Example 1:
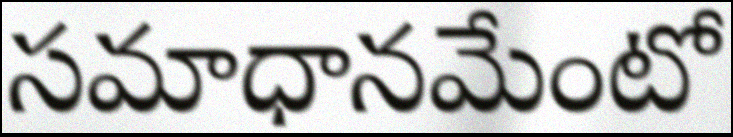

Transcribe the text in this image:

సమాధానమేంటో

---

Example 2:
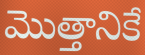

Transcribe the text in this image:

మొత్తానికే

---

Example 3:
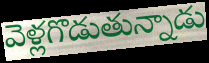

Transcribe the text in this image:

వెళ్లగొడుతున్నాడు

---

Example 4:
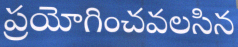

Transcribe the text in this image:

ప్రయోగించవలసిన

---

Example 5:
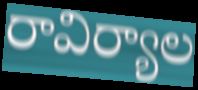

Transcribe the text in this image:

రావిర్యాల